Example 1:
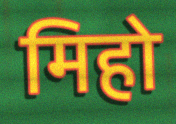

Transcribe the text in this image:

मिहो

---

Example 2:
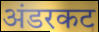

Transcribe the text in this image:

अंडरकट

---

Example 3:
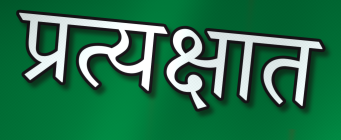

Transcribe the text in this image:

प्रत्यक्षात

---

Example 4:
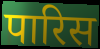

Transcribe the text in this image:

पारिस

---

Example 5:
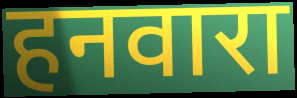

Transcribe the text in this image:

हनवारा